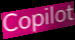
Copilot